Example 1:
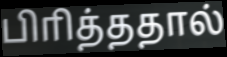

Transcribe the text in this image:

பிரித்ததால்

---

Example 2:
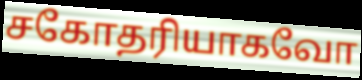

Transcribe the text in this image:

சகோதரியாகவோ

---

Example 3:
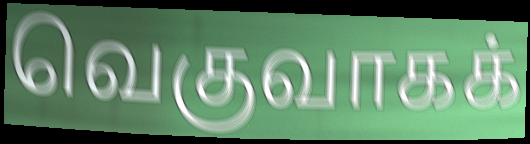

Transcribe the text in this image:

வெகுவாகக்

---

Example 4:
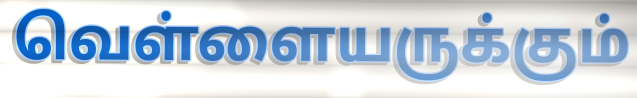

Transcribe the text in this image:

வெள்ளையருக்கும்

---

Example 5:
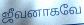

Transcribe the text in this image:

ஜீவனாகவே